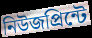
নিউজপ্রিন্টে